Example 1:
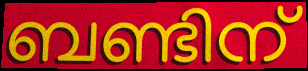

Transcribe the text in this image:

ബണ്ടിന്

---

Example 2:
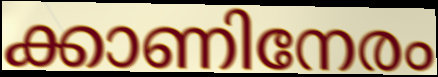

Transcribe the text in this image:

ക്കാണിനേരം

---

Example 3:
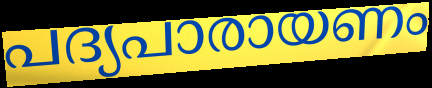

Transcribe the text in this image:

പദ്യപാരായണം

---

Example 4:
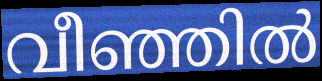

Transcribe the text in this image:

വീഞ്ഞിൽ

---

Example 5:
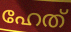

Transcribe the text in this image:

ഹേത്